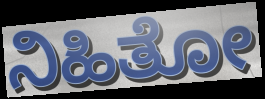
ನಿಹಿತೋ